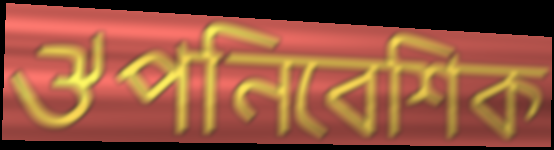
ঔপনিবেশিক